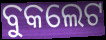
ବୁକଲେଟ